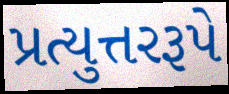
પ્રત્યુત્તરરૂપે